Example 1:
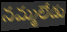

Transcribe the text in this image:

నమ్మలేడు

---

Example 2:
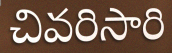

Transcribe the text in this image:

చివరిసారి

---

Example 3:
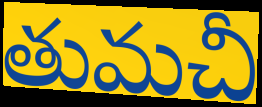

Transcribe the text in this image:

తుమచీ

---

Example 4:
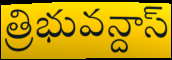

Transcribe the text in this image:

త్రిభువన్దాస్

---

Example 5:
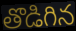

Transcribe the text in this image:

తొడిగిన